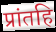
प्रांतहि